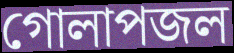
গোলাপজল